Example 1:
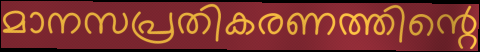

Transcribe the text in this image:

മാനസപ്രതികരണത്തിന്റെ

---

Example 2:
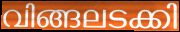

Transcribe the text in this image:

വിങ്ങലടക്കി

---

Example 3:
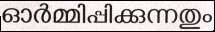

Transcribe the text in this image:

ഓർമ്മിപ്പിക്കുന്നതും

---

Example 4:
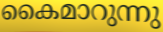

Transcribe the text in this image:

കൈമാറുന്നു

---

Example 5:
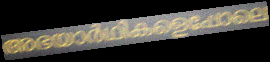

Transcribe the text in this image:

അഭയാർഥികളെപ്പോലെ